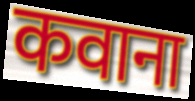
कवाना